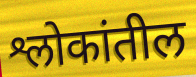
श्लोकांतील